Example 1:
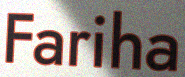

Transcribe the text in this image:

Fariha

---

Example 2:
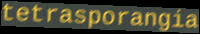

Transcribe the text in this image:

tetrasporangia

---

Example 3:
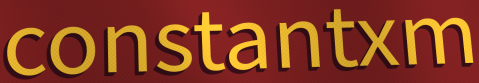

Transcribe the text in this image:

constantxm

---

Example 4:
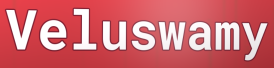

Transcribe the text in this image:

Veluswamy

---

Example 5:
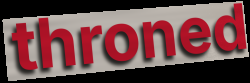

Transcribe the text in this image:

throned